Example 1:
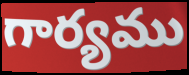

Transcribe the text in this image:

గార్యము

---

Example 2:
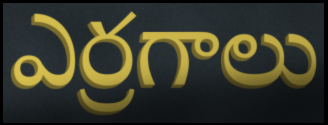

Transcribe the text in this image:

ఎర్రగాలు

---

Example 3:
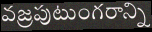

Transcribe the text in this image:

వజ్రపుటుంగరాన్ని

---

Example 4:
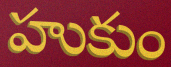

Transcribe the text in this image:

హుకుం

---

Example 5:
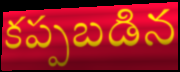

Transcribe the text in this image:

కప్పబడిన